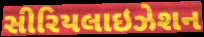
સીરિયલાઇઝેશન